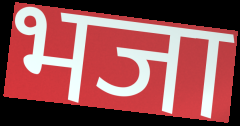
भजा